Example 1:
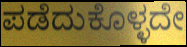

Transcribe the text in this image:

ಪಡೆದುಕೊಳ್ಳದೇ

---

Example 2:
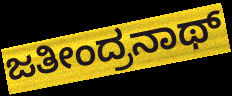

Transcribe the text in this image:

ಜತೀಂದ್ರನಾಥ್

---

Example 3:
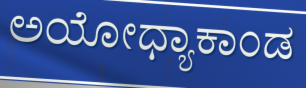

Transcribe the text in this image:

ಅಯೋಧ್ಯಾಕಾಂಡ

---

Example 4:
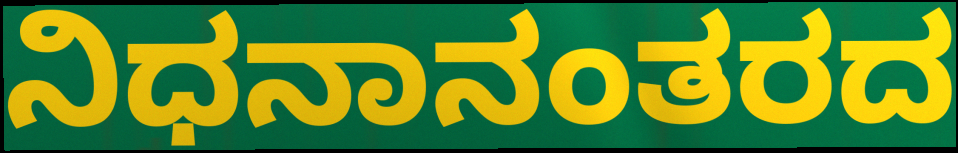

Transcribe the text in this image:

ನಿಧನಾನಂತರದ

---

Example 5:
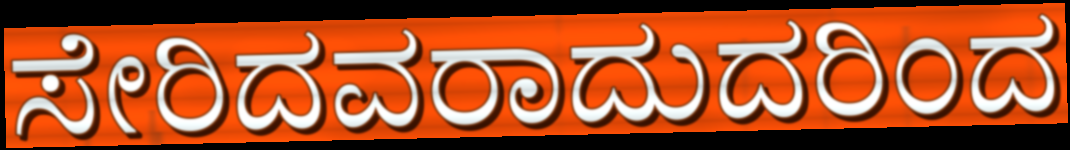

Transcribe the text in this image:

ಸೇರಿದವರಾದುದರಿಂದ